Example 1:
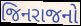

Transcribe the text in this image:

જિનરાજનો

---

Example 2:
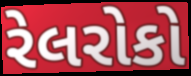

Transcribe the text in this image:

રેલરોકો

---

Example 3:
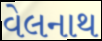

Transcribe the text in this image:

વેલનાથ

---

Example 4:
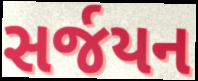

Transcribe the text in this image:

સર્જયન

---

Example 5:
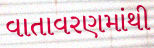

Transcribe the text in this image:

વાતાવરણમાંથી